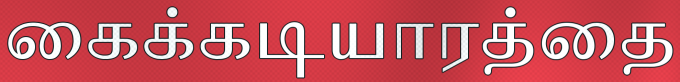
கைக்கடியாரத்தை